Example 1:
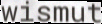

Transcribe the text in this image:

wismut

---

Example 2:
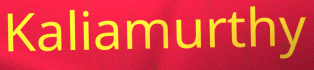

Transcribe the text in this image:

Kaliamurthy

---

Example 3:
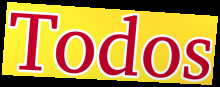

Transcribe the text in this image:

Todos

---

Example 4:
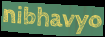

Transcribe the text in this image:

nibhavyo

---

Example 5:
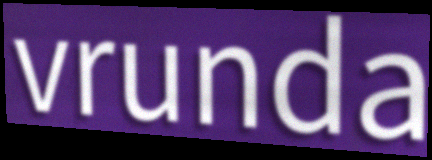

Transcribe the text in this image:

vrunda